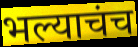
भल्याचंच